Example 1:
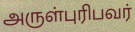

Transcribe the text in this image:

அருள்புரிபவர்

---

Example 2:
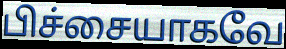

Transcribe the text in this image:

பிச்சையாகவே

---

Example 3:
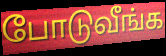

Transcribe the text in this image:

போடுவீங்க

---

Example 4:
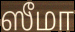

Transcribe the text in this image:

ஸீமா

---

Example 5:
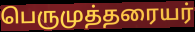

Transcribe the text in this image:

பெருமுத்தரையர்